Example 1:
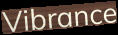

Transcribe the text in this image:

Vibrance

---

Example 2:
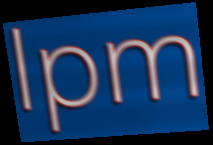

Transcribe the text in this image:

Ipm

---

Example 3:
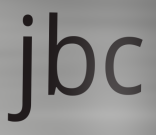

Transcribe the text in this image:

jbc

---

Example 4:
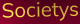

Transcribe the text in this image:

Societys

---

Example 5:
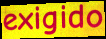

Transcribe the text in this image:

exigido